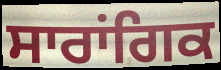
ਸਾਰਾਂਗਿਕ